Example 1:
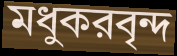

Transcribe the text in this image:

মধুকরবৃন্দ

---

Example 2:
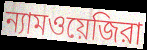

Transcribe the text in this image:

ন্যামওয়েজিরা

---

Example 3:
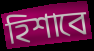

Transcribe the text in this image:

হিশাবে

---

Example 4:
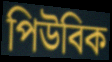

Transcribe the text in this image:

পিউবিক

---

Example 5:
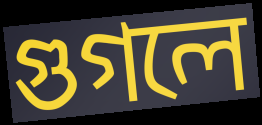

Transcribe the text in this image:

গুগলে